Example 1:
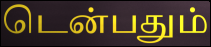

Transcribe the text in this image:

டென்பதும்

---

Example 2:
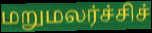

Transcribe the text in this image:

மறுமலர்ச்சிச்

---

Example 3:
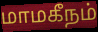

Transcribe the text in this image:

மாமகீநம்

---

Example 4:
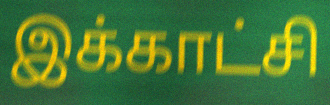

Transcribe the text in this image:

இக்காட்சி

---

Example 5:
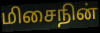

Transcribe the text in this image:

மிசைநின்